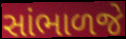
સાંભાળજે